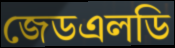
জেডএলডি